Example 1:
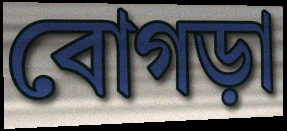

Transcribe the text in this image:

বোগড়া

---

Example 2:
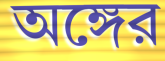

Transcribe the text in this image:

অঙ্গের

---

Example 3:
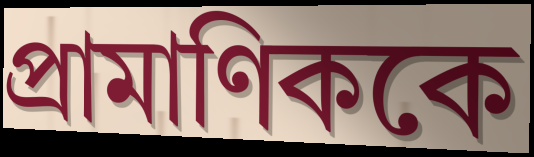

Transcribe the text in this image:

প্রামাণিককে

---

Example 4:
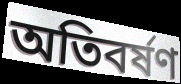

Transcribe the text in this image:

অতিবর্ষণ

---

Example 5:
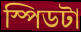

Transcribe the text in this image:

স্পিডটা